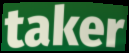
taker